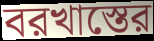
বরখাস্তের